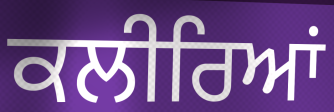
ਕਲੀਰਿਆਂ